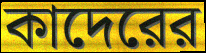
কাদেরের